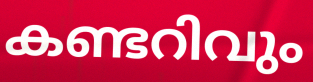
കണ്ടറിവും